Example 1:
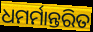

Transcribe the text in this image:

ଧମର୍ମାନ୍ତରିତ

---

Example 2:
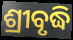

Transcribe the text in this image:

ଶ୍ରୀବୃଦ୍ଧି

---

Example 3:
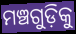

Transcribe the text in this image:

ମଞ୍ଚଗୁଡ଼ିକୁ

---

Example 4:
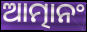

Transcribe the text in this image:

ଆତ୍ମାନଂ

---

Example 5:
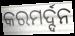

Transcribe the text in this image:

କରମର୍ଦ୍ଦନ